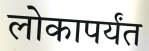
लोकापर्यंत